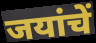
जयांचें